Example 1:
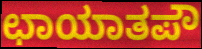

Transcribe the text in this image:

ಛಾಯಾತಪೌ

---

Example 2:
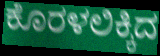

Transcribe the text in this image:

ಕೊರಳಲಿಕ್ಕಿದ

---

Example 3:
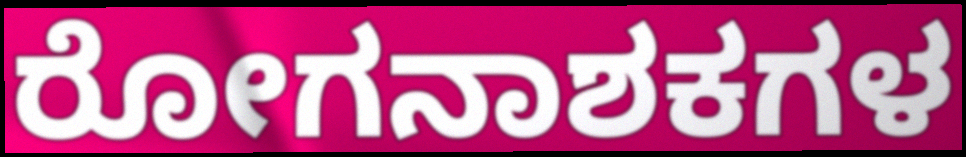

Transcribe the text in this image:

ರೋಗನಾಶಕಗಳ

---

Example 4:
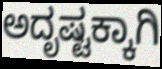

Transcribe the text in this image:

ಅದೃಷ್ಟಕ್ಕಾಗಿ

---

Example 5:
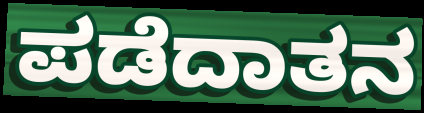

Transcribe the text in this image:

ಪಡೆದಾತನ